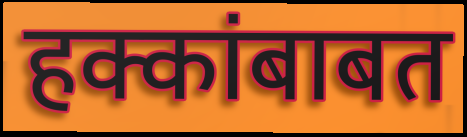
हक्कांबाबत